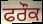
ਫਰੌਕ